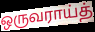
ஒருவராய்த்